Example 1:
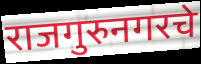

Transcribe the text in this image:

राजगुरुनगरचे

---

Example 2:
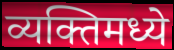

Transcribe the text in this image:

व्यक्तिमध्ये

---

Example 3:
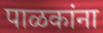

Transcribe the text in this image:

पाळकांना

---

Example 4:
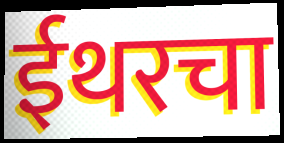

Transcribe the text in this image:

ईथरचा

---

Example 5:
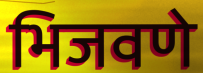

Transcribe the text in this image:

भिजवणे